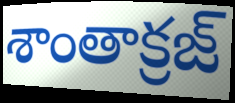
శాంతాక్రజ్